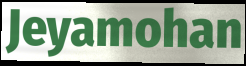
Jeyamohan